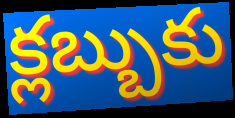
క్లబ్బుకు